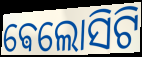
ଵେଲୋସିଟି